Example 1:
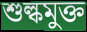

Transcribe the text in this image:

শুল্কমুক্ত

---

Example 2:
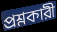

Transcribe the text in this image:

প্রশ্নকারী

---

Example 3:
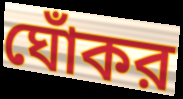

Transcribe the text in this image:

ঘোঁকর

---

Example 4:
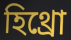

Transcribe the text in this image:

হিথ্রো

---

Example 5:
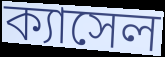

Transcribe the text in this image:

ক্যাসেল